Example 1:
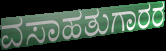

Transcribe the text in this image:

ವಸಾಹತುಗಾರರ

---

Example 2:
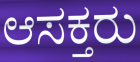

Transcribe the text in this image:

ಆಸಕ್ತರು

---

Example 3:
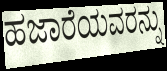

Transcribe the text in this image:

ಹಜಾರೆಯವರನ್ನು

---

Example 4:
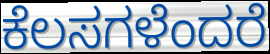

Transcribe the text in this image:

ಕೆಲಸಗಳೆಂದರೆ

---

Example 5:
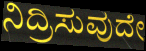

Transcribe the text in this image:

ನಿದ್ರಿಸುವುದೇ